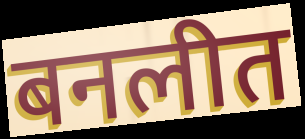
बनलीत